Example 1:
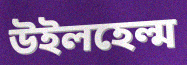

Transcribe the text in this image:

উইলহেল্ম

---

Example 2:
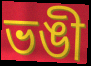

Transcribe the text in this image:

ভঙী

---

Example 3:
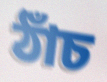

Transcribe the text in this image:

ঠাঁচ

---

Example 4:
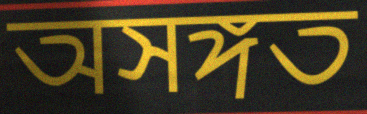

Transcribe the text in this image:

অসঙ্গত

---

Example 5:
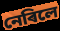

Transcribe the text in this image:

নেৰিলে